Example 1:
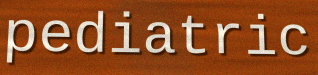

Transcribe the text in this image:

pediatric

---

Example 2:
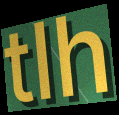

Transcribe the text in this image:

tlh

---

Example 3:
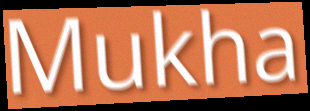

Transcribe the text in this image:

Mukha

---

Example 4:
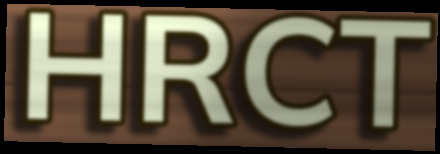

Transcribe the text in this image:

HRCT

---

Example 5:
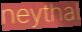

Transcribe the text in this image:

neythal